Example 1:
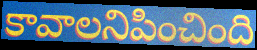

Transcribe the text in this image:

కావాలనిపించింది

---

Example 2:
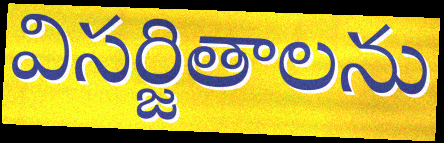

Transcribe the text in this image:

విసర్జితాలను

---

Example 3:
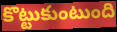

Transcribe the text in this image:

కొట్టుకుంటుంది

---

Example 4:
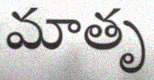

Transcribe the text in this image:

మాతృ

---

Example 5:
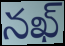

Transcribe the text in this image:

నఖ్